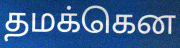
தமக்கென